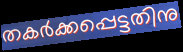
തകർക്കപ്പെട്ടതിനു